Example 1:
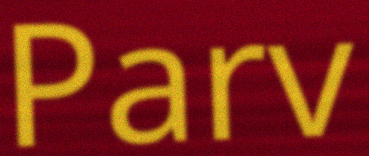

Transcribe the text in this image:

Parv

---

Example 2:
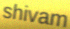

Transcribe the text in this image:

shivam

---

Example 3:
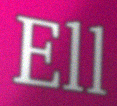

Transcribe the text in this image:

Ell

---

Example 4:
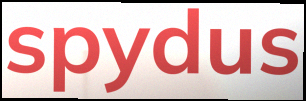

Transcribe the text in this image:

spydus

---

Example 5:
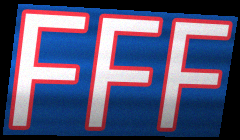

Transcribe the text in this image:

FFF